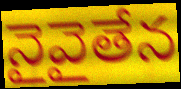
నైవైతేన